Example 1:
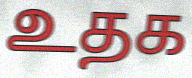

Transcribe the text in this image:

உதக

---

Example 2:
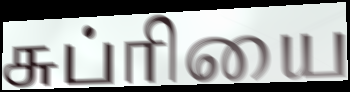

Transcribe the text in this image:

சுப்ரியை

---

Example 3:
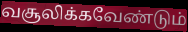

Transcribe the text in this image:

வசூலிக்கவேண்டும்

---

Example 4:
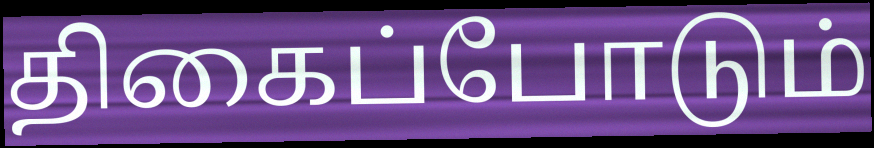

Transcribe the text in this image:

திகைப்போடும்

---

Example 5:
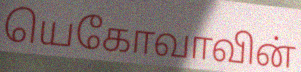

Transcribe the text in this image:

யெகோவாவின்